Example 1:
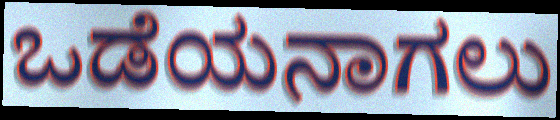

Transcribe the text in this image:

ಒಡೆಯನಾಗಲು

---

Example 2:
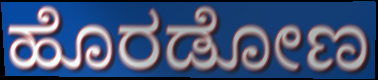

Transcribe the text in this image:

ಹೊರಡೋಣ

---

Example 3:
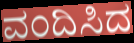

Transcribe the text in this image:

ವಂದಿಸಿದ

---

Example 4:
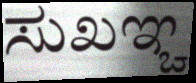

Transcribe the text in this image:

ಸುಖಞ್ಚ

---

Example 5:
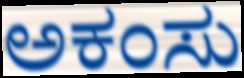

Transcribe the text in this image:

ಅಕಂಸು